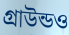
গ্রাউন্ডও